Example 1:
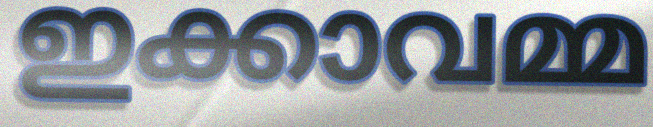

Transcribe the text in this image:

ഇക്കാവമ്മ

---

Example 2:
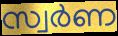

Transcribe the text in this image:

സ്വർണ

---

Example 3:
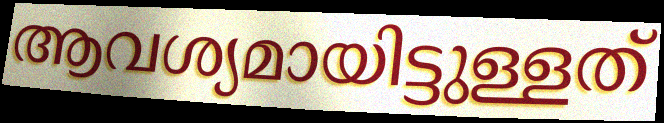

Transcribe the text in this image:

ആവശ്യമായിട്ടുള്ളത്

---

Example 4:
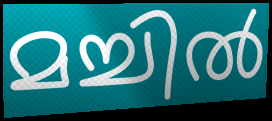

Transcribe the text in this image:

മച്ചിൽ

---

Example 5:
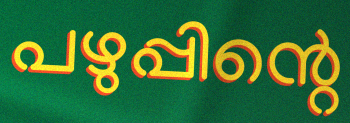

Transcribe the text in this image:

പഴുപ്പിന്റെ